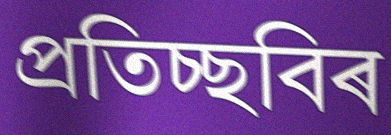
প্ৰতিচ্ছবিৰ